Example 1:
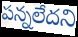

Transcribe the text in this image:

పన్నలేదని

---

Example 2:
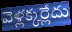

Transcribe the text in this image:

వెళ్లక్కర్లేదు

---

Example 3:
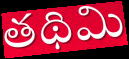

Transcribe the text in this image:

తథిమి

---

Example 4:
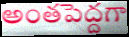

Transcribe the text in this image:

అంతపెద్దగా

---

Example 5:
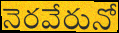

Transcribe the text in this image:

నెరవేరునో